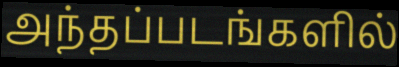
அந்தப்படங்களில்